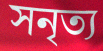
সনৃত্য